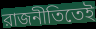
রাজনীতিতেই